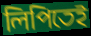
লিপিতেই